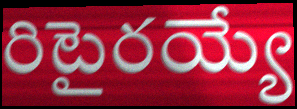
రిటైరయ్యే